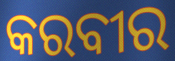
କରବୀର